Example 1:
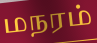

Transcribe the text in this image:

மநரம்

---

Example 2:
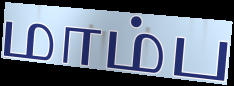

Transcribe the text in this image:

மாம்ப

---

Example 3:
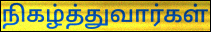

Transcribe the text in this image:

நிகழ்த்துவார்கள்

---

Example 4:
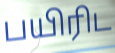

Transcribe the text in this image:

பயிரிட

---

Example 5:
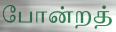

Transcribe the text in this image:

போன்றத்